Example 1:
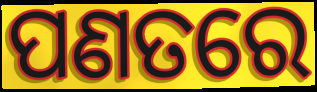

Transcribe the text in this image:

ପଣତରେ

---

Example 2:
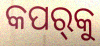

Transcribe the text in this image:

କପର୍‌କୁ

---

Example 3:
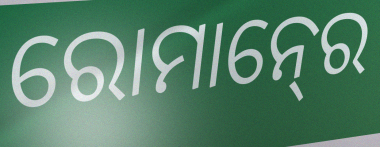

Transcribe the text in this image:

ରୋମାନ୍‍ରେ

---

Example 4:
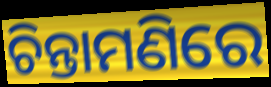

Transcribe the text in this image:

ଚିନ୍ତାମଣିରେ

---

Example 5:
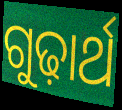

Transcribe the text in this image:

ଗୁଢ଼ାର୍ଥ